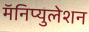
मॅनिप्युलेशन